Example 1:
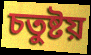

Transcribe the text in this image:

চতুষ্টয়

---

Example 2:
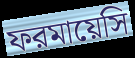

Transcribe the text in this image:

ফরমায়েসি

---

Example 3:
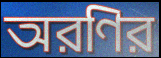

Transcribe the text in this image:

অরণির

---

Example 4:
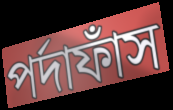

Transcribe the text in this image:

পর্দাফাঁস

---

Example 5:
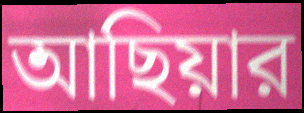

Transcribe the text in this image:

আছিয়ার